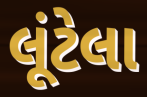
લૂંટેલા